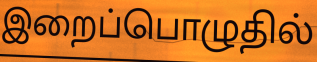
இறைப்பொழுதில்